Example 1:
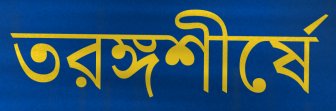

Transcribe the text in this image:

তরঙ্গশীর্ষে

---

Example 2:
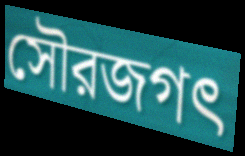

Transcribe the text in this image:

সৌরজগৎ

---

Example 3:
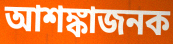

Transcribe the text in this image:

আশঙ্কাজনক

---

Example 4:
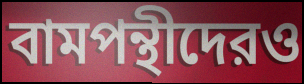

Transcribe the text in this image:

বামপন্থীদেরও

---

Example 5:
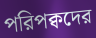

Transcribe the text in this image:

পরিপক্বদের